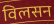
विलसन